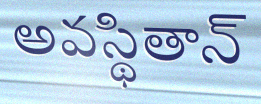
అవస్థితాన్